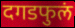
दगडफुलं